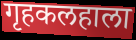
गृहकलहाला